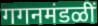
गगनमंडळीं